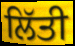
ਲਿੱਤੀ